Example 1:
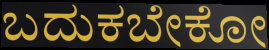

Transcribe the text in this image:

ಬದುಕಬೇಕೋ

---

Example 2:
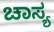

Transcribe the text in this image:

ಚಾಸ್ಯ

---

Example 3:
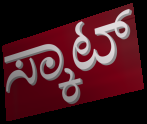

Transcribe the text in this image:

ಸ್ಕಾಟ್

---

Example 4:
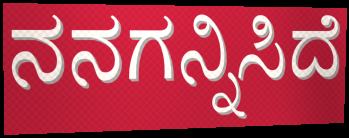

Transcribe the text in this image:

ನನಗನ್ನಿಸಿದೆ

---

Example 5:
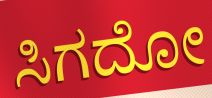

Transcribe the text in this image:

ಸಿಗದೋ